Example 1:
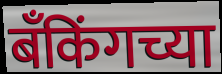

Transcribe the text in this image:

बँकिंगच्या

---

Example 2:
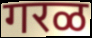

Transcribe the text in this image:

गरळ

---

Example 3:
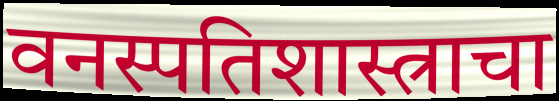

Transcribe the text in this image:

वनस्पतिशास्त्राचा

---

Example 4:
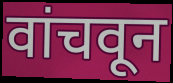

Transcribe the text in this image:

वांचवून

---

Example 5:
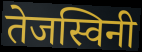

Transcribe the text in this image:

तेजस्विनी